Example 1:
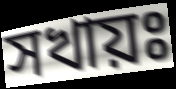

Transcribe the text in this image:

সখায়ঃ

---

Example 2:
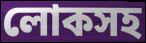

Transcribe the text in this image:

লোকসহ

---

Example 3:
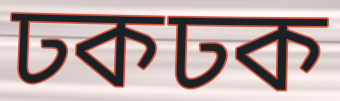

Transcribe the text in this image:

ঢকঢক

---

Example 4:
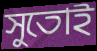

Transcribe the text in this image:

সুতোই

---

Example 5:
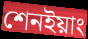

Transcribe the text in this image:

শেনইয়াং